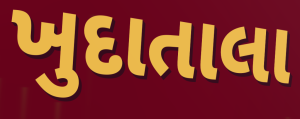
ખુદાતાલા